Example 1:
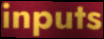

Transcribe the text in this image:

inputs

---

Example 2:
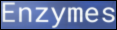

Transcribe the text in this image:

Enzymes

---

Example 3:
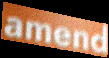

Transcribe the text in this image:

amend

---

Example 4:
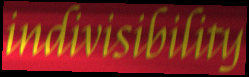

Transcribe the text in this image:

indivisibility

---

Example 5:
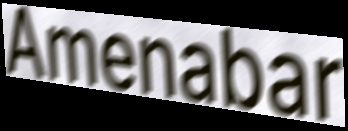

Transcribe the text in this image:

Amenabar